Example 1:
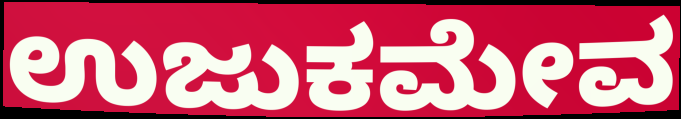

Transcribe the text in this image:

ಉಜುಕಮೇವ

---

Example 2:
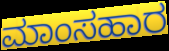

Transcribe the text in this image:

ಮಾಂಸಹಾರ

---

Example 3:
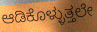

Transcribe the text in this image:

ಆಡಿಕೊಳ್ಳುತ್ತಲೇ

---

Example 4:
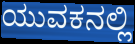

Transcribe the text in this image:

ಯುವಕನಲ್ಲಿ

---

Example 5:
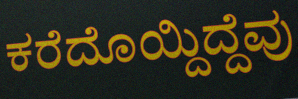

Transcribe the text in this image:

ಕರೆದೊಯ್ದಿದ್ದೆವು